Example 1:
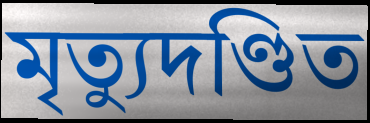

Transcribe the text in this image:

মৃত্যুদণ্ডিত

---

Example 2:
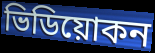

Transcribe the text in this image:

ভিডিয়োকন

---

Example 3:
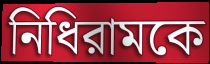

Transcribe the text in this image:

নিধিরামকে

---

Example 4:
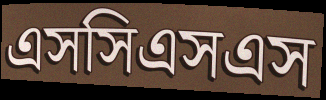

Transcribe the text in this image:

এসসিএসএস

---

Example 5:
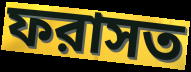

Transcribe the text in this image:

ফরাসত